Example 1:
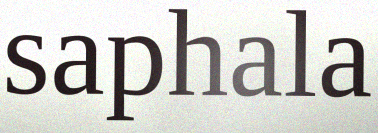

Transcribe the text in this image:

saphala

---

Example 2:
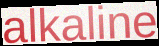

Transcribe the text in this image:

alkaline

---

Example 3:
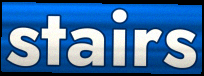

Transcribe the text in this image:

stairs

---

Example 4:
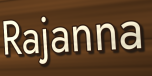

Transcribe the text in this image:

Rajanna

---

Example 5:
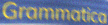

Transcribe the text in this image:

Grammatica